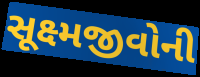
સૂક્ષ્મજીવોની